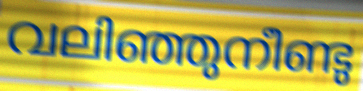
വലിഞ്ഞുനീണ്ടു